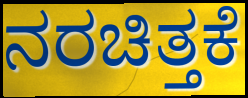
ನರಚಿತ್ತಕೆ